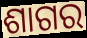
ଶାଗର